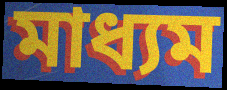
মাধ্যম